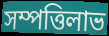
সম্পত্তিলাভ